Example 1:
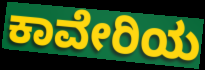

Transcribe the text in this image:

ಕಾವೇರಿಯ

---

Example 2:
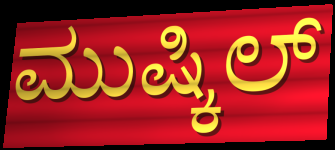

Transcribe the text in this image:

ಮುಷ್ಕಿಲ್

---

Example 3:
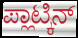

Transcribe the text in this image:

ಪ್ಲಾಟ್ಕಿನ್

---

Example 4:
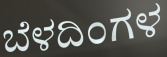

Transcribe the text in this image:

ಬೆಳದಿಂಗಳ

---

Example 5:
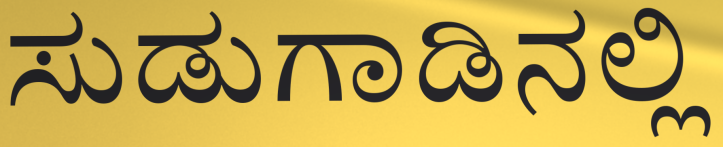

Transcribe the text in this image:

ಸುಡುಗಾಡಿನಲ್ಲಿ